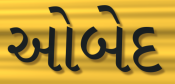
ઓબેદ